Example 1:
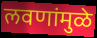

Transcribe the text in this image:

लवणांमुळे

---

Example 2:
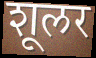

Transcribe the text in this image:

शूलर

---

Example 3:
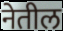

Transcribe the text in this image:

नेतील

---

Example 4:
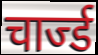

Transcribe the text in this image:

चार्ज्ड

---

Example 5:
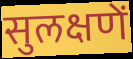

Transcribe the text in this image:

सुलक्षणें